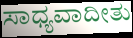
ಸಾಧ್ಯವಾದೀತು